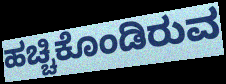
ಹಚ್ಚಿಕೊಂಡಿರುವ